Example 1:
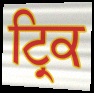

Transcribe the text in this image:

ਟ੍ਰਿਕ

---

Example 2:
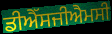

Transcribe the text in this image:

ਡੀਐੱਸਜੀਐਮਸੀ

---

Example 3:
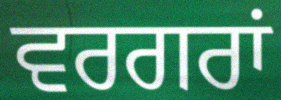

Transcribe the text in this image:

ਵਰਗਰਾਂ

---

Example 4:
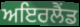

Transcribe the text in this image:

ਅਇਰਲੈਂਡ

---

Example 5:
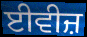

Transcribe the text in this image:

ਈਵੀਜ਼